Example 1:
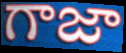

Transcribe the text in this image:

గాజా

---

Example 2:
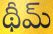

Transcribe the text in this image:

థీమ్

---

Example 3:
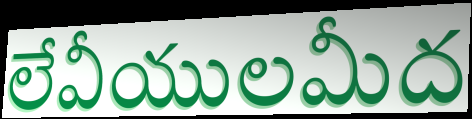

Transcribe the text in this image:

లేవీయులమీద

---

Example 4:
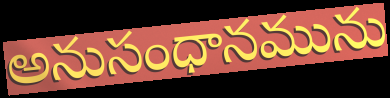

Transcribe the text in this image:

అనుసంధానమును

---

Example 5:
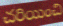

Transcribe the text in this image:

చరియించి